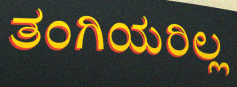
ತಂಗಿಯರಿಲ್ಲ